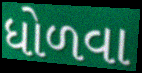
ધોળવા